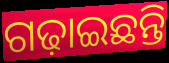
ଗଢ଼ାଇଛନ୍ତି